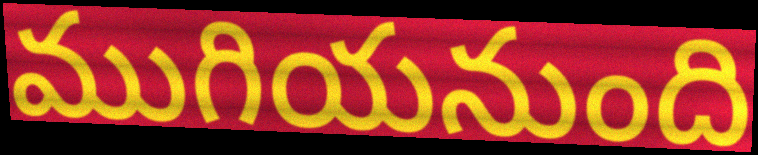
ముగియనుంది